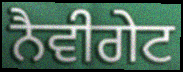
ਨੈਵੀਗੇਟ